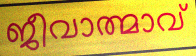
ജീവാത്മാവ്